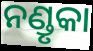
ନଣ୍ଡୃକା